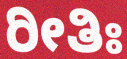
ರೀತಿಃ